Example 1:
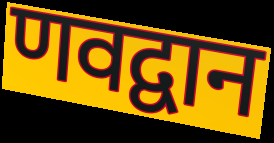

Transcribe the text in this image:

णवद्वान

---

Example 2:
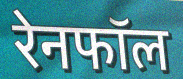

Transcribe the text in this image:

रेनफॉल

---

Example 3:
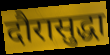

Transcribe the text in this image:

दौरासुद्धा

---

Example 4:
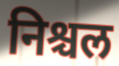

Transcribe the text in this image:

निश्चल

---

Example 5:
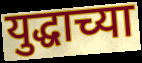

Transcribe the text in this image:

युद्धाच्या